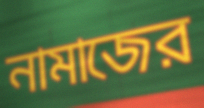
নামাজের